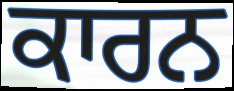
ਕਾਰਨ